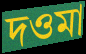
দওমা